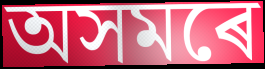
অসমৰে